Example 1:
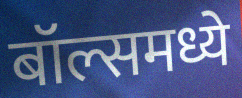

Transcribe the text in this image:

बॉल्समध्ये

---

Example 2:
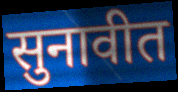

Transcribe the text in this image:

सुनावीत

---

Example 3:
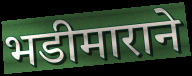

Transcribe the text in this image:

भडीमाराने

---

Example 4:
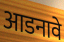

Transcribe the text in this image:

आडनावे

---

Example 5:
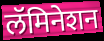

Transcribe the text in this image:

लॅमिनेशन